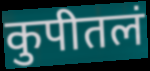
कुपीतलं